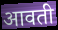
आवती